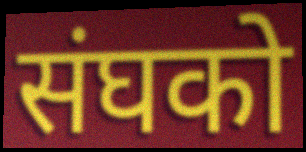
संघको